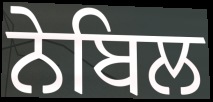
ਨੇਬਿਲ